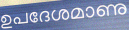
ഉപദേശമാണു